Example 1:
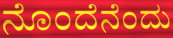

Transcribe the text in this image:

ನೊಂದೆನೆಂದು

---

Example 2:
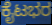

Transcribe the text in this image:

ಕೈಟಭರ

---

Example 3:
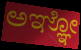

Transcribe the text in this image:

ಅಞ್ಞೋ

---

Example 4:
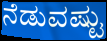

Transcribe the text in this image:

ನೆಡುವಷ್ಟು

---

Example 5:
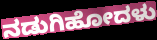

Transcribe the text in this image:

ನಡುಗಿಹೋದಳು